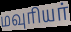
மவுரியர்